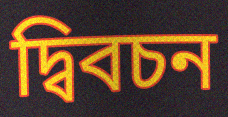
দ্বিবচন